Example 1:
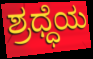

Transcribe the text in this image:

ಶ್ರಧ್ಧೆಯ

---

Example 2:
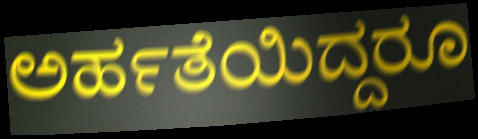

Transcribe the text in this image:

ಅರ್ಹತೆಯಿದ್ದರೂ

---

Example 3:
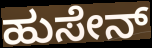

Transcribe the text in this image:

ಹುಸೇನ್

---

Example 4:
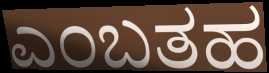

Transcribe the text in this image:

ಎಂಬತಹ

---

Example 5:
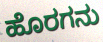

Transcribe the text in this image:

ಹೊರಗನು